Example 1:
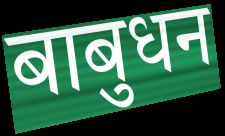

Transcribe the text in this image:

बाबुधन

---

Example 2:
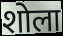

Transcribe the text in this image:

शोला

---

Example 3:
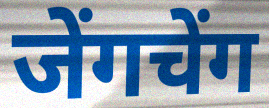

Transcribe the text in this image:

जेंगचेंग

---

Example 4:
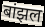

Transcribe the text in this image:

बांझल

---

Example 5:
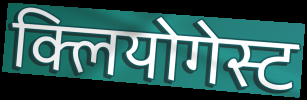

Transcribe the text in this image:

क्लियोगेस्ट